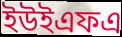
ইউইএফএ